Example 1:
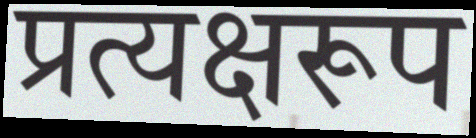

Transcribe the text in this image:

प्रत्यक्षरूप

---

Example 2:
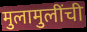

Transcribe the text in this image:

मुलामुलींची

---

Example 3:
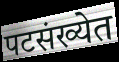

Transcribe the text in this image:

पटसंख्येत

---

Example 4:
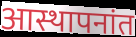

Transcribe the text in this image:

आस्थापनांत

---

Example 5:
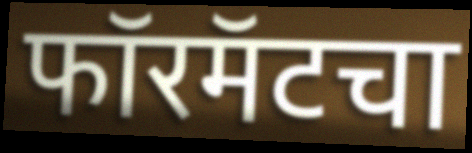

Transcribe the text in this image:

फॉरमॅटचा